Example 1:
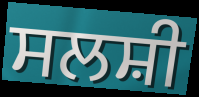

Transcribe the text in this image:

ਸਲਸ਼ੀ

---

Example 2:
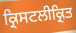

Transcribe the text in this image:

ਕ੍ਰਿਸਟਲੀਕ੍ਰਿਤ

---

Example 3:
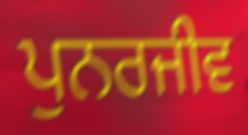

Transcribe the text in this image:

ਪੁਨਰਜੀਵ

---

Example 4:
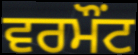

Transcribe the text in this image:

ਵਰਮੌਂਟ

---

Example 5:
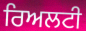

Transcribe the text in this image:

ਰਿਅਲਟੀ